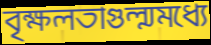
বৃক্ষলতাগুল্মমধ্যে